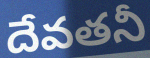
దేవతనీ